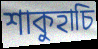
শাকুহাচি